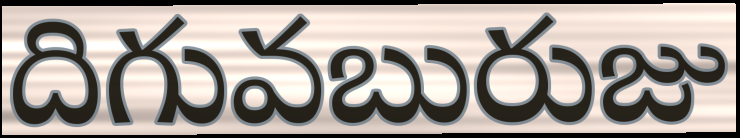
దిగువబురుజు